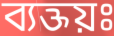
ব্যক্তয়ঃ